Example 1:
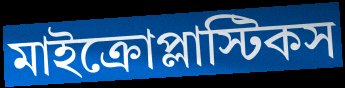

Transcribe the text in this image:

মাইক্রোপ্লাস্টিকস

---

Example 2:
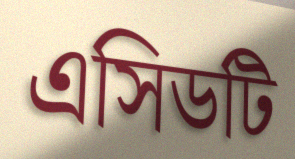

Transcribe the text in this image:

এসিডটি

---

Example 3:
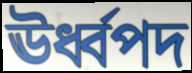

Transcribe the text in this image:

ঊর্ধ্বপদ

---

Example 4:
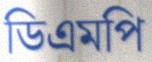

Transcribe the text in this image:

ডিএমপি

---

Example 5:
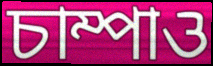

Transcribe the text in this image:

চাম্পাও